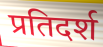
प्रतिदर्श